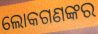
ଲୋକଗଣଙ୍କର